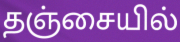
தஞ்சையில்